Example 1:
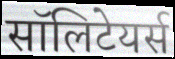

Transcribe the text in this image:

सॉलिटेयर्स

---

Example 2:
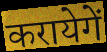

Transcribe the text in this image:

करायेगें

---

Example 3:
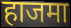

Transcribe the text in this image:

हाजमा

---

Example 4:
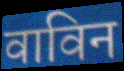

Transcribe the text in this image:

वाविन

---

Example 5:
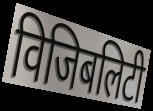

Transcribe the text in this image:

विजिबलिटी